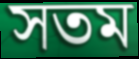
সতম